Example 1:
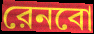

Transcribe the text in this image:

রেনবো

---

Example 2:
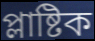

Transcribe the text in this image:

প্লাষ্টিক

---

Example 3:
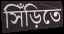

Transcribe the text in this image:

সিঁড়িতে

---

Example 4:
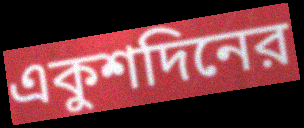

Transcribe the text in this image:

একুশদিনের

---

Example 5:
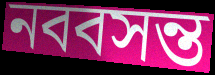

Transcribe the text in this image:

নববসন্ত